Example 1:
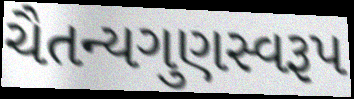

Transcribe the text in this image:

ચૈતન્યગુણસ્વરૂપ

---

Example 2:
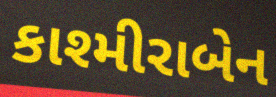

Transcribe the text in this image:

કાશ્મીરાબેન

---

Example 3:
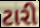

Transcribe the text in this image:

ટારી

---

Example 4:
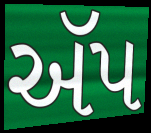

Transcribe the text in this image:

ઍપ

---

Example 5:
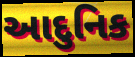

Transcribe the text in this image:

આદુનિક